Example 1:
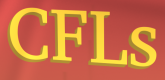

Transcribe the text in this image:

CFLs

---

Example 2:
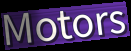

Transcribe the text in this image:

Motors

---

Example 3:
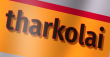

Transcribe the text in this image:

tharkolai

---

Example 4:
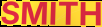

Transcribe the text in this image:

SMITH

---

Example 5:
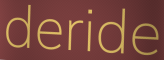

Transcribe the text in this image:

deride